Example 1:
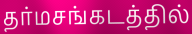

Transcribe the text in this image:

தர்மசங்கடத்தில்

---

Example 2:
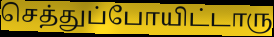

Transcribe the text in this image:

செத்துப்போயிட்டாரு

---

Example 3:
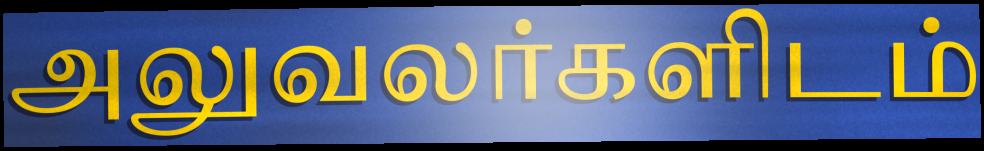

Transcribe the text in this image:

அலுவலர்களிடம்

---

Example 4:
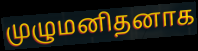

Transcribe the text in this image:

முழுமனிதனாக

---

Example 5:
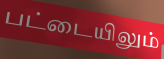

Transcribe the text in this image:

பட்டையிலும்